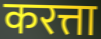
करत्ता